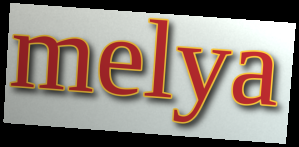
melya